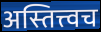
अस्तित्त्वच